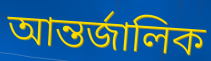
আন্তর্জালিক